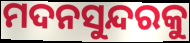
ମଦନସୁନ୍ଦରକୁ